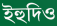
ইহুদিও